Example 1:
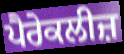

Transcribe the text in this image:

ਪੈਰੇਕਲੀਜ਼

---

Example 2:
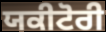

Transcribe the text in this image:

ਯਕੀਟੋਰੀ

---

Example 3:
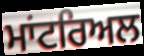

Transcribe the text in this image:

ਮਾਂਟਰਿਅਲ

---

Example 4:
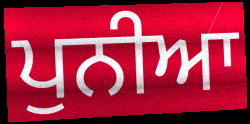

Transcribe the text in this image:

ਪੁਨੀਆ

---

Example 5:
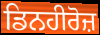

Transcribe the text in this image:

ਡਿਨਹੀਰੋਜ਼